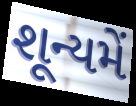
શૂન્યમેં